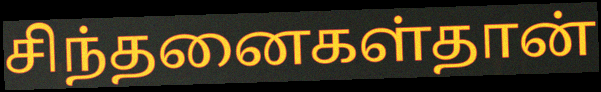
சிந்தனைகள்தான்